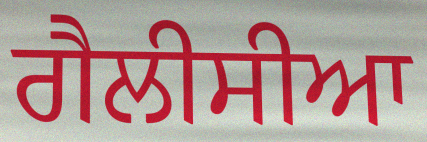
ਗੈਲੀਸੀਆ